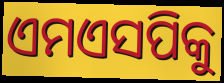
ଏମଏସପିକୁ